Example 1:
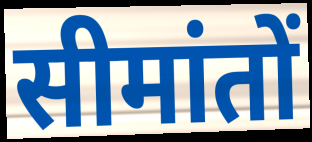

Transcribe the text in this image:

सीमांतों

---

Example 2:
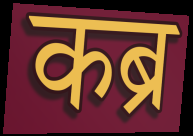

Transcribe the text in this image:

कब्र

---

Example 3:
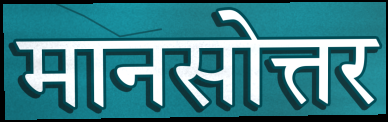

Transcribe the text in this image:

मानसोत्तर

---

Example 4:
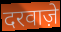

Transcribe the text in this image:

दरवाज़े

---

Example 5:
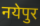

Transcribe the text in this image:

नयेपुर